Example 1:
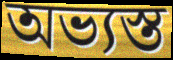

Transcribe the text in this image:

অভ্যস্ত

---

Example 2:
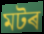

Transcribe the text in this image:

মটৰ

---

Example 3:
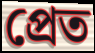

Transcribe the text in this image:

প্ৰেত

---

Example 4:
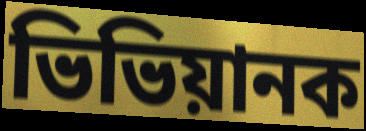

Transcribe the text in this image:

ভিভিয়ানক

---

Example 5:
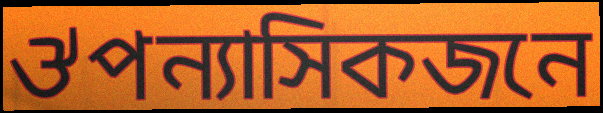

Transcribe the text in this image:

ঔপন্যাসিকজনে